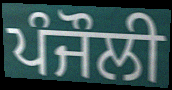
ਪੰਜੌਲੀ